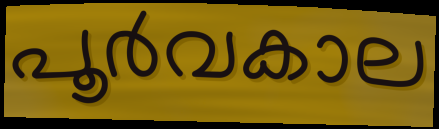
പൂർവകാല